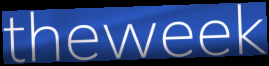
theweek